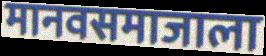
मानवसमाजाला